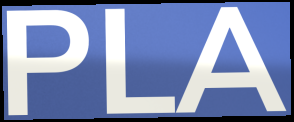
PLA